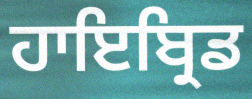
ਹਾਇਬ੍ਰਿਡ